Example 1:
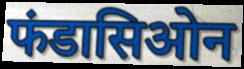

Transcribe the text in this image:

फंडासिओन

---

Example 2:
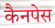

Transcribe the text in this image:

कैनपेस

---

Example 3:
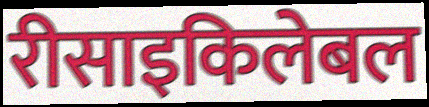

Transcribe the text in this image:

रीसाइकिलेबल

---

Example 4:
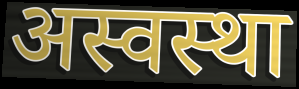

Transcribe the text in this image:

अस्वस्था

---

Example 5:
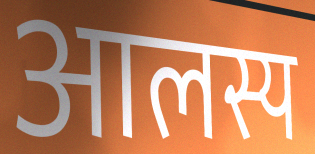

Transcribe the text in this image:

आलस्‍य